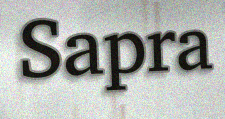
Sapra